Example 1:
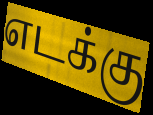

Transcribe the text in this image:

எடக்கு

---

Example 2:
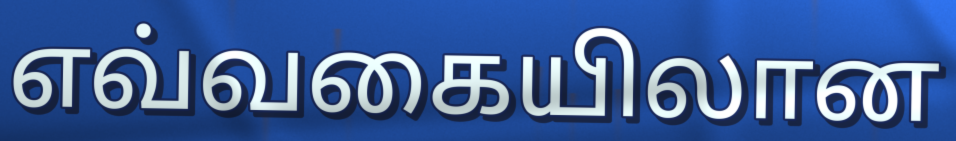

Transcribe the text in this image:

எவ்வகையிலான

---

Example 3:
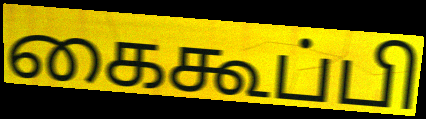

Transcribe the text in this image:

கைகூப்பி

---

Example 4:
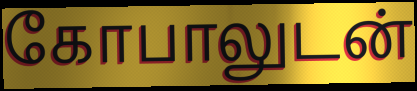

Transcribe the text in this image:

கோபாலுடன்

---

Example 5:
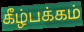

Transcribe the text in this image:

கீழ்பக்கம்